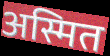
अस्मित